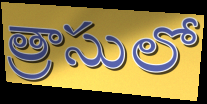
త్రాసులో